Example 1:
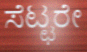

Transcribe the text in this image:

ಸೆಟ್ಟರೇ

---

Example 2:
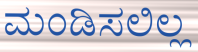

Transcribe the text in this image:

ಮಂಡಿಸಲಿಲ್ಲ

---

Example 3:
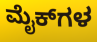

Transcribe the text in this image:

ಮೈಕ್‌ಗಳ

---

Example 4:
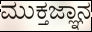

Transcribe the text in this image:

ಮುಕ್ತಜ್ಞಾನ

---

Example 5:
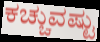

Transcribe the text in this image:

ಕಚ್ಚುವಷ್ಟು